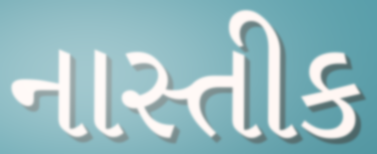
નાસ્તીક